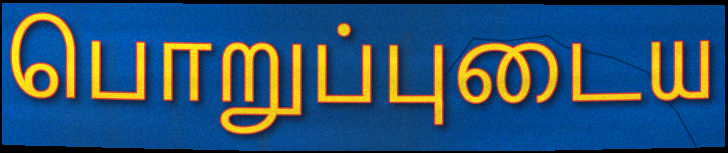
பொறுப்புடைய